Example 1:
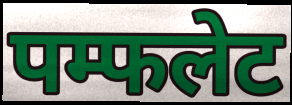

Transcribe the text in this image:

पम्फलेट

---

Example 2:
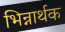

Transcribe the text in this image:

भिन्नार्थक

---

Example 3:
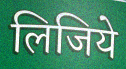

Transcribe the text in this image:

लिजिये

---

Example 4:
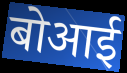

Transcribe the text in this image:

बोआई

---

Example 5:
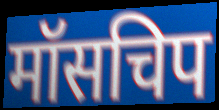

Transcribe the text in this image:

मॉसचिप